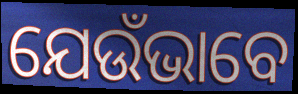
ଯେଉଁଭାବେ